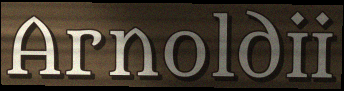
Arnoldii